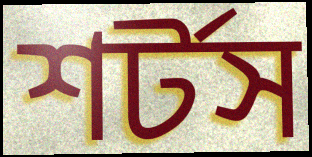
শর্টস